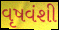
વૃષવંશી